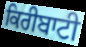
ਕਿਰੀਬਾਟੀ